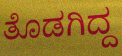
ತೊಡಗಿದ್ದ